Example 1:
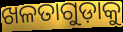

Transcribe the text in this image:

ଖଳତାଗୁଡ଼ାକୁ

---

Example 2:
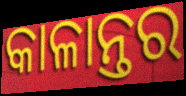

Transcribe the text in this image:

କାଳାନ୍ତର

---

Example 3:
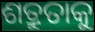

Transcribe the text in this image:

ଶତ୍ରୁତାକୁ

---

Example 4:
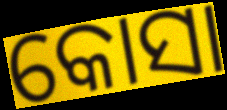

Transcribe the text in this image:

କୋସା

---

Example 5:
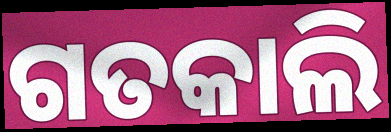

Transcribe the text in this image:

ଗତକାଲି